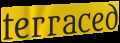
terraced